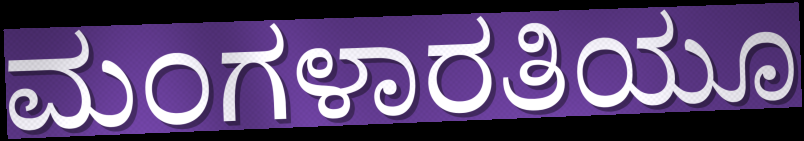
ಮಂಗಳಾರತಿಯೂ